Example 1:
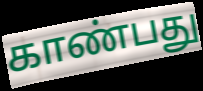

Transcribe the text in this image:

காண்பது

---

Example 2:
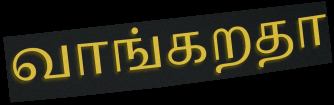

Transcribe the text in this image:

வாங்கறதா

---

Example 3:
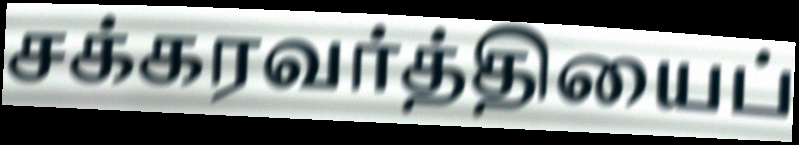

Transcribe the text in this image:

சக்கரவர்த்தியைப்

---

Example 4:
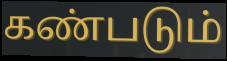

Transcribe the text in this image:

கண்படும்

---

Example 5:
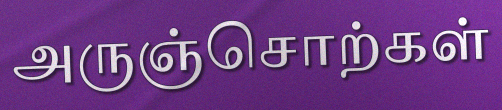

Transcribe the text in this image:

அருஞ்சொற்கள்